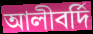
আলীবর্দি